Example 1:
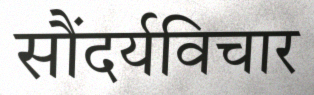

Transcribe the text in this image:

सौंदर्यविचार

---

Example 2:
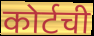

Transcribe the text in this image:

कोर्टची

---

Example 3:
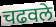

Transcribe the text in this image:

चढवले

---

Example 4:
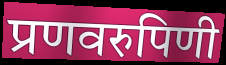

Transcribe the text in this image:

प्रणवरुपिणी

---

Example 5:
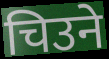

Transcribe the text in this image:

चिउने